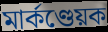
মাৰ্কণ্ডেয়ক